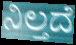
ನಿಲ್ತದೆ